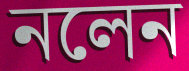
নলেন